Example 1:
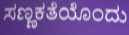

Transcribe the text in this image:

ಸಣ್ಣಕತೆಯೊಂದು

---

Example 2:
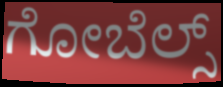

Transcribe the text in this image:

ಗೋಬೆಲ್ಸ್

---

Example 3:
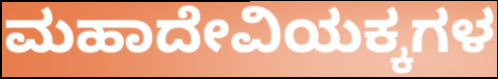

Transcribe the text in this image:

ಮಹಾದೇವಿಯಕ್ಕಗಳ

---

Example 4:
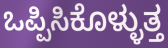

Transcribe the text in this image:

ಒಪ್ಪಿಸಿಕೊಳ್ಳುತ್ತ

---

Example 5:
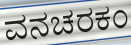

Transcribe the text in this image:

ವನಚರಕಂ